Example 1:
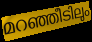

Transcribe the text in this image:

മറഞ്ഞീടിലും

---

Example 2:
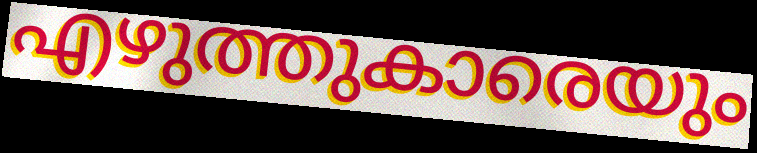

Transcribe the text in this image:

എഴുത്തുകാരെയും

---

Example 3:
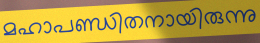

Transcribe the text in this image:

മഹാപണ്ഡിതനായിരുന്നു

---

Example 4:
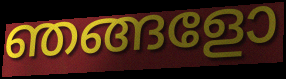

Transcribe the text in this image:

ഞങ്ങളോ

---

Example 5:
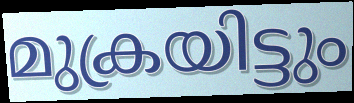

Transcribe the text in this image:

മുക്രയിട്ടും